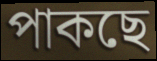
পাকছে